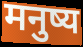
मनुष्य